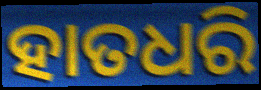
ହାତଧରି